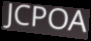
JCPOA